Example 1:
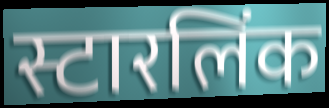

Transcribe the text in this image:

स्टारलिंक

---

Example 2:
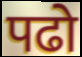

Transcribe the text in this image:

पढो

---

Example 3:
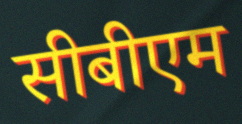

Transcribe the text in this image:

सीबीएम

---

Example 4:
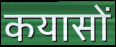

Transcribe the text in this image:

कयासों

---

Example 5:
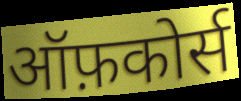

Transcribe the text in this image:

ऑफ़कोर्स